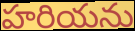
హరియను